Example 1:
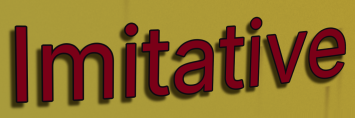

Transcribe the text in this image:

Imitative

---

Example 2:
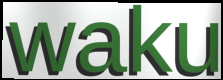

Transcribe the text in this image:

waku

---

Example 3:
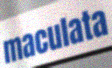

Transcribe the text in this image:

maculata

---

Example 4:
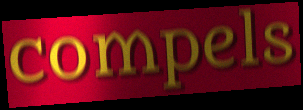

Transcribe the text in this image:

compels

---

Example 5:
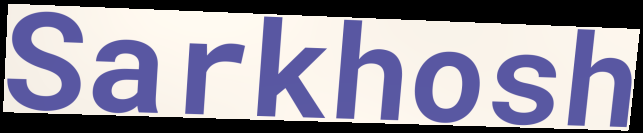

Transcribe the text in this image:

Sarkhosh